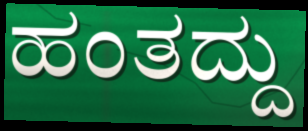
ಹಂತದ್ದು